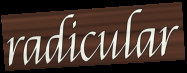
radicular